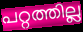
പറ്റത്തില്ല